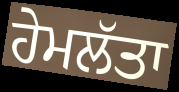
ਹੇਮਲੱਤਾ